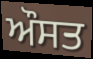
ਔਸਤ